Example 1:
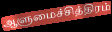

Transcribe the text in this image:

ஆளுமைச்சித்திரம்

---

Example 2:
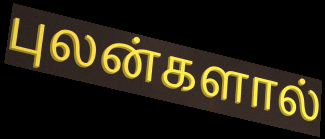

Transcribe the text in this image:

புலன்களால்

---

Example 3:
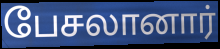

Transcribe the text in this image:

பேசலானார்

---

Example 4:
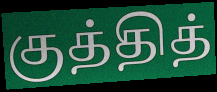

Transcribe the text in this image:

குத்தித்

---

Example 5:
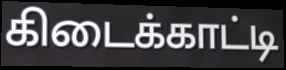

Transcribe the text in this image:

கிடைக்காட்டி